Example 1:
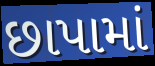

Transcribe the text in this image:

છાપામાં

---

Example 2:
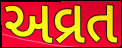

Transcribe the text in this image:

અવ્રત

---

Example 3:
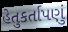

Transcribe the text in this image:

હેતુકર્તાપણું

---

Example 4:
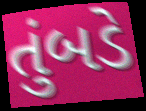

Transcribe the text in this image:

તુંબડે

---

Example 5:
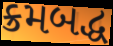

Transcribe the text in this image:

ક્રમબદ્ધ